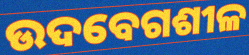
ଉଦବେଗଶୀଳ